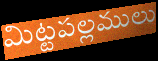
మిట్టపల్లములు